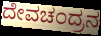
ದೇವಚಂದ್ರನ